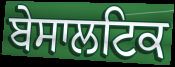
ਬੇਸਾਲਟਿਕ